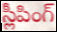
స్లీపింగ్